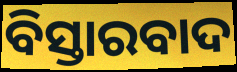
ବିସ୍ତାରବାଦ